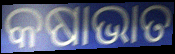
କଷାଭାତ